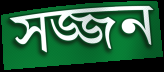
সজ্জন